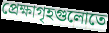
প্রেক্ষাগৃহগুলোতে